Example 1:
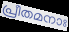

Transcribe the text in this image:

പ്രീതമനാഃ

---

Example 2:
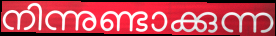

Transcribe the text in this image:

നിന്നുണ്ടാക്കുന്ന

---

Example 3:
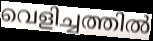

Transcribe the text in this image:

വെളിച്ചത്തിൽ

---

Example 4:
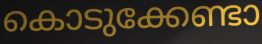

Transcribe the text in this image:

കൊടുക്കേണ്ടാ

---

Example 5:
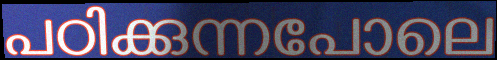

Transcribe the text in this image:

പഠിക്കുന്നപോലെ